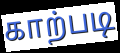
காற்படி